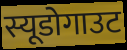
स्यूडोगाउट